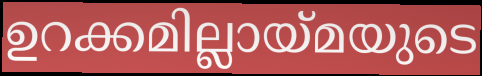
ഉറക്കമില്ലായ്മയുടെ